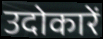
उदोकारें